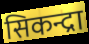
सिकन्द्रा